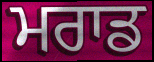
ਮਰਾਡ